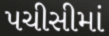
પચીસીમાં